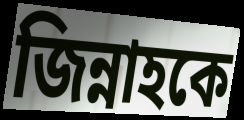
জিন্নাহকে